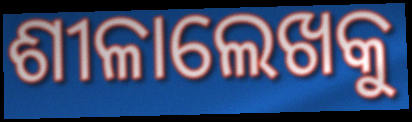
ଶୀଳାଲେଖକୁ